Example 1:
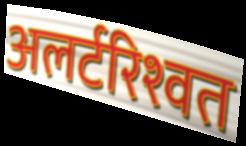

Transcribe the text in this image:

अलर्टरिश्वत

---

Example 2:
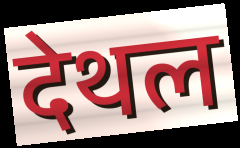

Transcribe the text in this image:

देथल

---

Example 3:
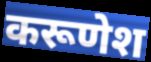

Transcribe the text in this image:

करूणेश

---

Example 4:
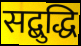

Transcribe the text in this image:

सद्बुद्धि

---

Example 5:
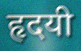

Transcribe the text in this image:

हृदयी